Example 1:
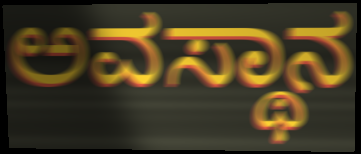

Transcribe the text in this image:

ಅವಸ್ಥಾನ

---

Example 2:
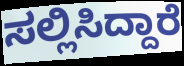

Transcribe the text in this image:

ಸಲ್ಲಿಸಿದ್ದಾರೆ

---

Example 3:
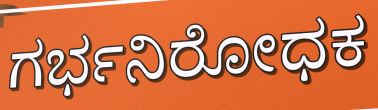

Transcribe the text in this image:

ಗರ್ಭನಿರೋಧಕ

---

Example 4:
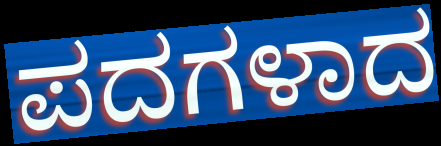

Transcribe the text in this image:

ಪದಗಳಾದ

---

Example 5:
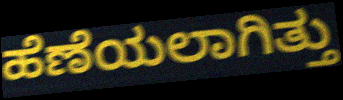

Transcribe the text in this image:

ಹೆಣೆಯಲಾಗಿತ್ತು